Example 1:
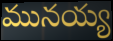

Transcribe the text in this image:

మునయ్య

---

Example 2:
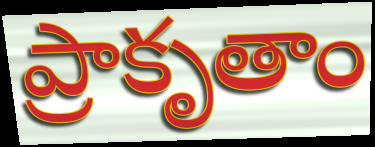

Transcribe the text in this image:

ప్రాకృతాం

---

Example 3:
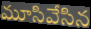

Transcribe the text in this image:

మూసివేసిన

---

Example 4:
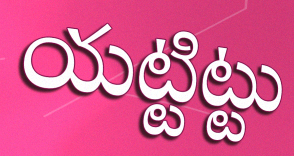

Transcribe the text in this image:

యట్టిట్టు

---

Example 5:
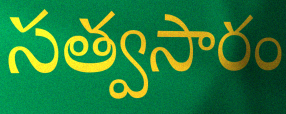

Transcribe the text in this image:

సత్వసారం